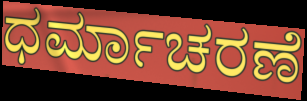
ಧರ್ಮಾಚರಣೆ